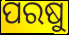
ପରଷୁ